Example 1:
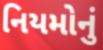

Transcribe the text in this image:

નિયમોનું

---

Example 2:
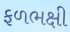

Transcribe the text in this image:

ફળભક્ષી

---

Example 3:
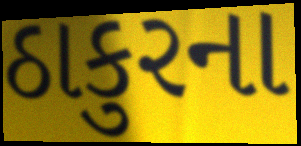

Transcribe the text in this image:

ઠાકુરના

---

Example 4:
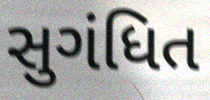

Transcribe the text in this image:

સુગંધિત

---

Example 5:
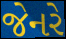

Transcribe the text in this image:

જેનરે